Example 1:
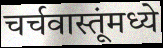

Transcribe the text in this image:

चर्चवास्तूंमध्ये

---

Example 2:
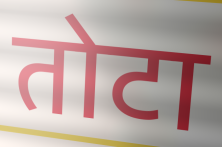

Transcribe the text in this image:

तोटा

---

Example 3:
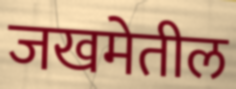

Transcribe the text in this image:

जखमेतील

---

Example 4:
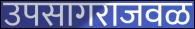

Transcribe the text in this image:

उपसागराजवळ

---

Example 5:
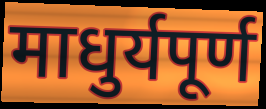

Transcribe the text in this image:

माधुर्यपूर्ण